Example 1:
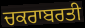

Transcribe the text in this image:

ਚਕਰਾਬਰਤੀ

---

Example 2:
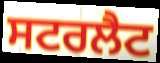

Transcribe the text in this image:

ਸਟਰਲੈਟ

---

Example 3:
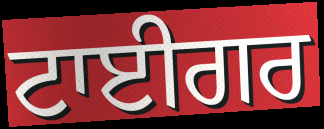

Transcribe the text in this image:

ਟਾਈਗਰ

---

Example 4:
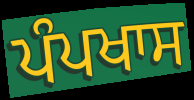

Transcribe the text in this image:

ਪੰਪਖਾਸ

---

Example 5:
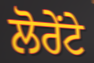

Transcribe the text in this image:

ਲੋਰੇਂਟੇ